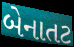
બેનાતટ